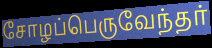
சோழப்பெருவேந்தர்